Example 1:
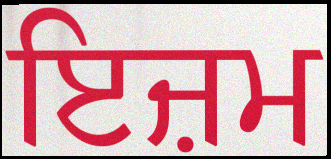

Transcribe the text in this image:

ਇਜ਼ਮ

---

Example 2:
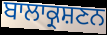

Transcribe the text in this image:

ਬਾਲਾਕ੍ਰਸ਼ਣਨ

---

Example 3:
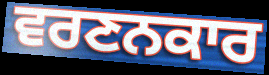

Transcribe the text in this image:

ਵਰਣਨਕਾਰ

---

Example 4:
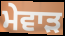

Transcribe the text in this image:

ਮੇਵਾੜ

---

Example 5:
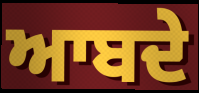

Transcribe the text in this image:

ਆਬਦੇ